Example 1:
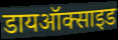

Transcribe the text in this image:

डायऑक्साइड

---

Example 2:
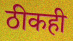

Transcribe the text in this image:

ठीकही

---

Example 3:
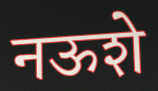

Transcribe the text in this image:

नऊशे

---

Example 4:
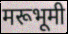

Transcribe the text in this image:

मरूभूमी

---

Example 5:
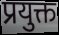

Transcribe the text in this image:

प्रयुक्त